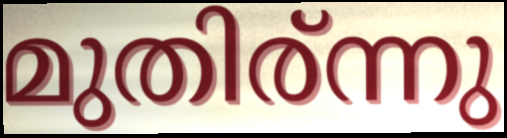
മുതിര്ന്നു